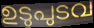
ഉടുപുടവ